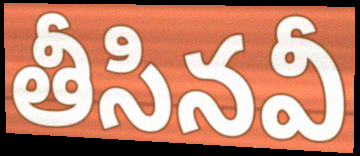
తీసినవీ